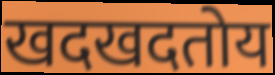
खदखदतोय